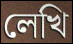
লেখি